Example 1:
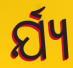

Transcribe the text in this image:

ର୍ଯ୍ୟ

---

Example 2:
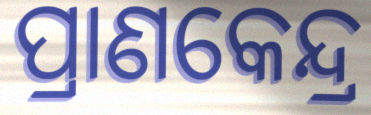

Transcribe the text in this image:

ପ୍ରାଣକେନ୍ଦ୍ର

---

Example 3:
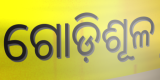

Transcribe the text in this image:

ଗୋଡ଼ିଶୂଳ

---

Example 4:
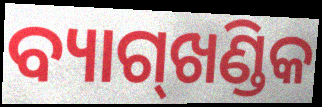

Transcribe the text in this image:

ବ୍ୟାଗ୍‌ଖଣ୍ଡିକ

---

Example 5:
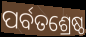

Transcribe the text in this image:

ପର୍ବତଶ୍ରେଷ୍ଠ